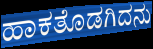
ಹಾಕತೊಡಗಿದನು